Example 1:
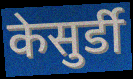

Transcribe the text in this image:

केसुर्डी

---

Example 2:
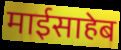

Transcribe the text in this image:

माईसाहेब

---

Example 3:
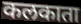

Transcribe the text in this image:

कलकाता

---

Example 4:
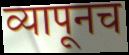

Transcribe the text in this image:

व्यापूनच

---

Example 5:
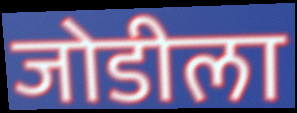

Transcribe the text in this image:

जोडीला